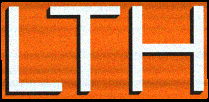
LTH